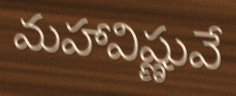
మహావిష్ణువే